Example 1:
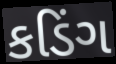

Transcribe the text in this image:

કડિંગ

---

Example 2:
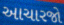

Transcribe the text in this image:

આચારજો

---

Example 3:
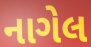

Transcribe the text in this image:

નાગેલ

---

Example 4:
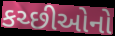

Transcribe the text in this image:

કચ્છીઓનો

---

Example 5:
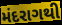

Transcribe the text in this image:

મંદરાગથી